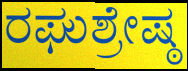
ರಘುಶ್ರೇಷ್ಠ